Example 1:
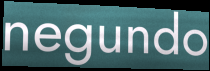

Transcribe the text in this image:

negundo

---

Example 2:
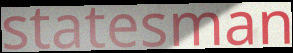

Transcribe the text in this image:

statesman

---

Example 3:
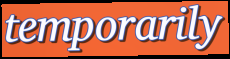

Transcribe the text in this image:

temporarily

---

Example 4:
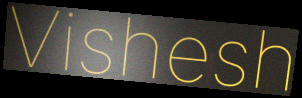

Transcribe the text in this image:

Vishesh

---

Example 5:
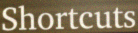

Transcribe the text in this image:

Shortcuts